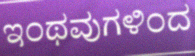
ಇಂಥವುಗಳಿಂದ